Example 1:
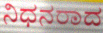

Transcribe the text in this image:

ನಿಧನರಾದ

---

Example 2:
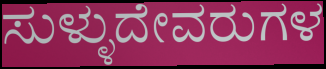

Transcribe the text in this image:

ಸುಳ್ಳುದೇವರುಗಳ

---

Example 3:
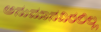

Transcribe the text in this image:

ಅನುಮಾನವಿರಲಿಲ್ಲ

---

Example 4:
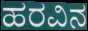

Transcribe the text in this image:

ಹರವಿನ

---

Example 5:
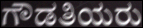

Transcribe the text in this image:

ಗೌಡತಿಯರು